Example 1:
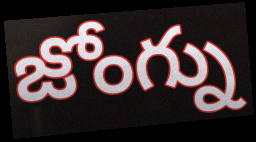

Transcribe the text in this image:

జోంగ్ను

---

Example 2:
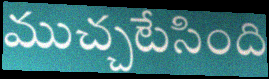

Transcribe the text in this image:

ముచ్చటేసింది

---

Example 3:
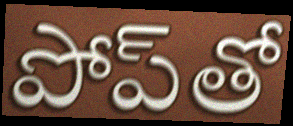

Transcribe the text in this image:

పోప్‌తో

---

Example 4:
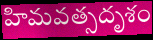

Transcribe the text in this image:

హిమవత్సదృశం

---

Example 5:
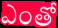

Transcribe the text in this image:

ఎంతో